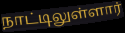
நாட்டிலுள்ளார்